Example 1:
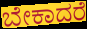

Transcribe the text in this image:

ಬೇಕಾದರೆ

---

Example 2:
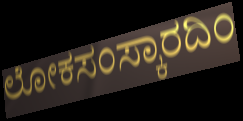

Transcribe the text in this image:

ಲೋಕಸಂಸ್ಕಾರದಿಂ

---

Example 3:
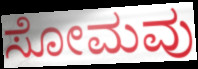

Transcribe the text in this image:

ಸೋಮವು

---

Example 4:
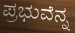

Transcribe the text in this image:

ಪ್ರಭುವೆನ್ನ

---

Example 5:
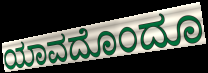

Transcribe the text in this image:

ಯಾವದೊಂದೂ